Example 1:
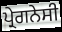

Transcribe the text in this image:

ਪ੍ਰੇਗਨੇਸੀ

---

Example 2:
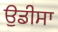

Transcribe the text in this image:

ਉਡੀਸਾ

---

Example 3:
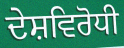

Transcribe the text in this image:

ਦੇਸ਼ਵਿਰੋਧੀ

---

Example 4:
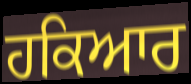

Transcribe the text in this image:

ਹਕਿਆਰ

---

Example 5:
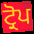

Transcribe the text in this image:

ਟ੍ਰੋਪ